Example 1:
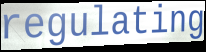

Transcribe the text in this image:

regulating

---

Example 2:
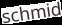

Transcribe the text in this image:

schmid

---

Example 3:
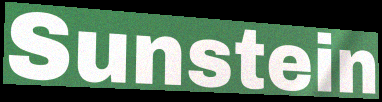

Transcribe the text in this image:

Sunstein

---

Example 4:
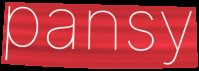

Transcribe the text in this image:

pansy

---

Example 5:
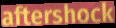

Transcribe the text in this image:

aftershock